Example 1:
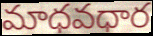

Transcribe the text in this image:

మాధవధార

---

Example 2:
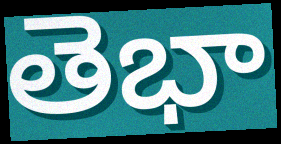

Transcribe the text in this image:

తెభా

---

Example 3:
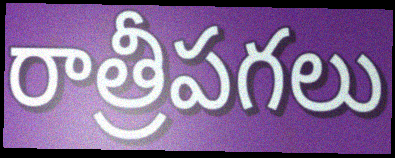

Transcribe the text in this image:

రాత్రీపగలు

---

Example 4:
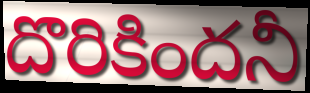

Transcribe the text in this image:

దొరికిందనీ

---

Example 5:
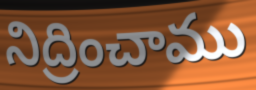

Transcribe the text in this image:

నిద్రించాము